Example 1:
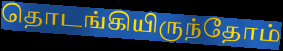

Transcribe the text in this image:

தொடங்கியிருந்தோம்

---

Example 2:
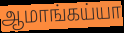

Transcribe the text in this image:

ஆமாங்கய்யா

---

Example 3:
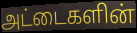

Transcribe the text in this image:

அட்டைகளின்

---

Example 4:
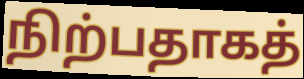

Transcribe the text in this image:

நிற்பதாகத்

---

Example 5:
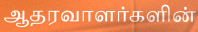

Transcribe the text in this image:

ஆதரவாளர்களின்